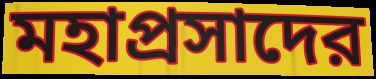
মহাপ্রসাদের